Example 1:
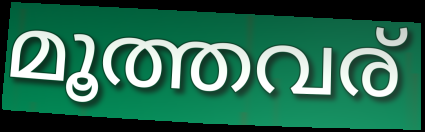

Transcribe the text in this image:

മൂത്തവര്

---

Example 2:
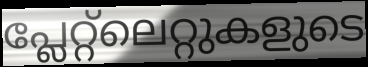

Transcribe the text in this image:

പ്ലേറ്റ്ലെറ്റുകളുടെ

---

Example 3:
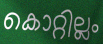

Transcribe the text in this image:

കൊറ്റില്ലം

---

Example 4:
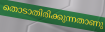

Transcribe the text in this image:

തൊടാതിരിക്കുന്നതാണു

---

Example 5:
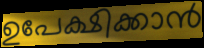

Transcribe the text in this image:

ഉപേക്ഷിക്കാൻ